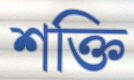
শক্তি